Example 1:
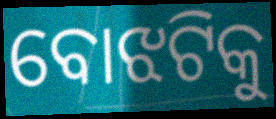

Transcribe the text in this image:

ବୋଝଟିକୁ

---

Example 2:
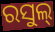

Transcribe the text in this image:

ରସୁଲ୍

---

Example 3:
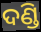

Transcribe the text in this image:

ଦଣ୍ଡି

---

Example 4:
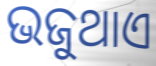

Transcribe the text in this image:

ଭଜୁଥାଏ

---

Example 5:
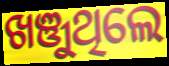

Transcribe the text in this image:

ଖଞ୍ଜୁଥିଲେ